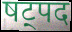
षट्पद